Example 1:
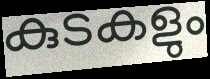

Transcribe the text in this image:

കുടകളും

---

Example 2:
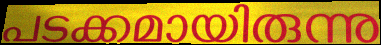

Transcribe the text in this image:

പടക്കമായിരുന്നു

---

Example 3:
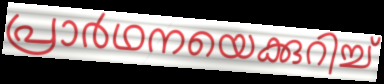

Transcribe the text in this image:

പ്രാർഥനയെക്കുറിച്ച്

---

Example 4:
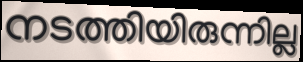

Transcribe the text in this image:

നടത്തിയിരുന്നില്ല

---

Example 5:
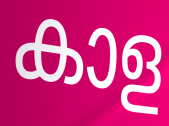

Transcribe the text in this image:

കാള